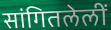
सांगितलेलीं